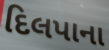
દિલપાના